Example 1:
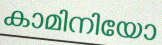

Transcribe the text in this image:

കാമിനിയോ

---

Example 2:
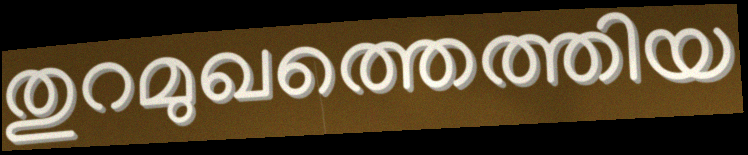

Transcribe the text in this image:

തുറമുഖത്തെത്തിയ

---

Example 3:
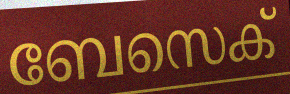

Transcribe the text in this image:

ബേസെക്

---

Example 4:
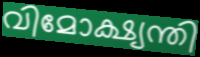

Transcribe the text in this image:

വിമോക്ഷ്യന്തി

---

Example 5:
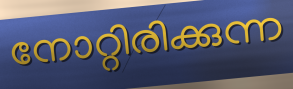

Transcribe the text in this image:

നോറ്റിരിക്കുന്ന